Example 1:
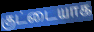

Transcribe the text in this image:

குட்டையாக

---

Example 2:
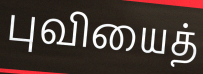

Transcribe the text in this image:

புவியைத்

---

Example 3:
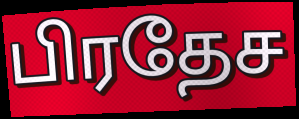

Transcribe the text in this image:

பிரதேச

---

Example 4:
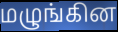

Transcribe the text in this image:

மழுங்கின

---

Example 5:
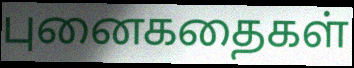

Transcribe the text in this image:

புனைகதைகள்